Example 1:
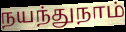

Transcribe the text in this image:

நயந்துநாம்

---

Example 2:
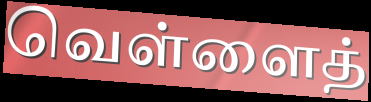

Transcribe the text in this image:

வெள்ளைத்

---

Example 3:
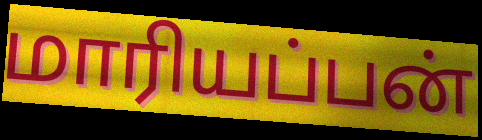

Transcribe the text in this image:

மாரியப்பன்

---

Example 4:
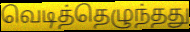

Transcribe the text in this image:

வெடித்தெழுந்தது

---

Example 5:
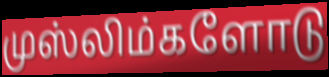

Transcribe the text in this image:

முஸ்லிம்களோடு